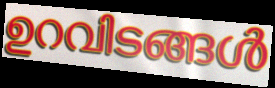
ഉറവിടങ്ങൾ